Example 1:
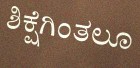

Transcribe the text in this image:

ಶಿಕ್ಷೆಗಿಂತಲೂ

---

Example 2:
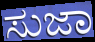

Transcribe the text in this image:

ಸುಜಾ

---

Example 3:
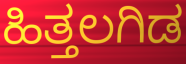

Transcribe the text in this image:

ಹಿತ್ತಲಗಿಡ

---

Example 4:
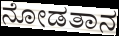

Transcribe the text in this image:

ನೋಡತಾನ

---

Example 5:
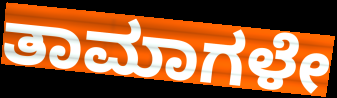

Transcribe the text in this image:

ತಾಮಾಗಳೇ